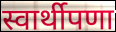
स्वार्थीपणा